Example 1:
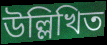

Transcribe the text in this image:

উল্লিখিত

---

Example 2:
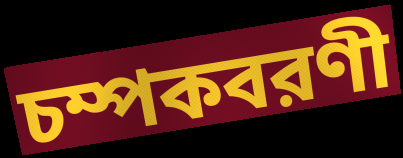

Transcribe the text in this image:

চম্পকবরণী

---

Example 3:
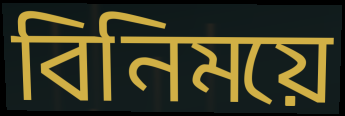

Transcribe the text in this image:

বিনিময়ে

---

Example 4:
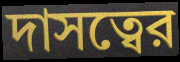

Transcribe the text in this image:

দাসত্বের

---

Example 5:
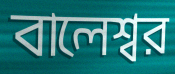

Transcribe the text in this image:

বালেশ্বর